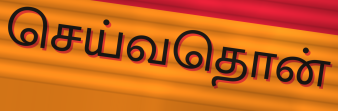
செய்வதொன்